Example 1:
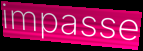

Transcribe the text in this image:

impasse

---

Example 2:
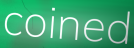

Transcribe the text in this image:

coined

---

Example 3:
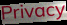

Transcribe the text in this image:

Privacy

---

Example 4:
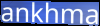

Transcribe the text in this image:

ankhma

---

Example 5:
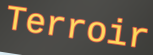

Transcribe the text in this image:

Terroir